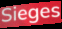
Sieges